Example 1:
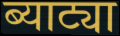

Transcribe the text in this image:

ब्याट्या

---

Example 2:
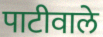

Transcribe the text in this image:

पाटीवाले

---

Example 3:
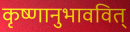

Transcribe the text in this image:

कृष्णानुभाववित्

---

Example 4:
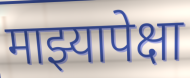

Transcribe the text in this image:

माझ्यापेक्षा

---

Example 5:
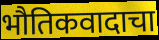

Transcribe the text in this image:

भौतिकवादाचा